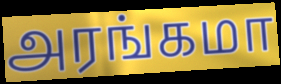
அரங்கமா